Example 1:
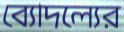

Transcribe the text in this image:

ব্যোদল্যের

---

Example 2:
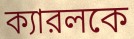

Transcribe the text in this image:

ক্যারলকে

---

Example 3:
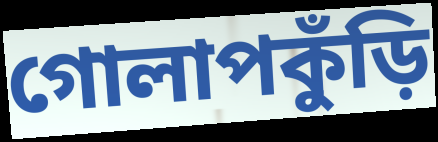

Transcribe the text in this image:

গোলাপকুঁড়ি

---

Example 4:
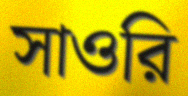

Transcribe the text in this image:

সাওরি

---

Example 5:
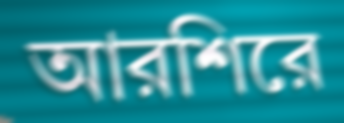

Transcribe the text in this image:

আরশিরে